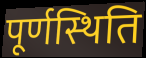
पूर्णस्थिति